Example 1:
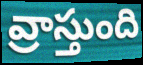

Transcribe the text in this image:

వ్రాస్తుంది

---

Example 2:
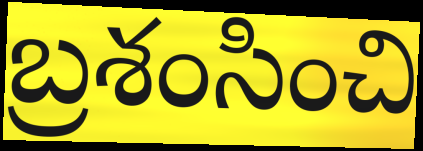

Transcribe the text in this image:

బ్రశంసించి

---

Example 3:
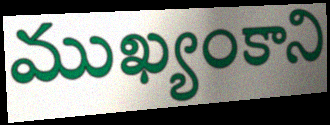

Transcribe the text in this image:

ముఖ్యంకాని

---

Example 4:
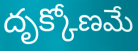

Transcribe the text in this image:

దృక్కోణమే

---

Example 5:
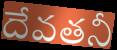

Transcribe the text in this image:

దేవతనీ